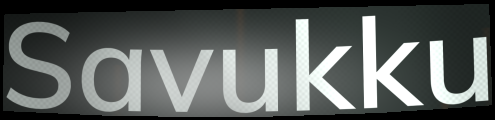
Savukku